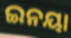
ଇନୟା